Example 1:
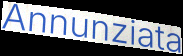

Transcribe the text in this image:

Annunziata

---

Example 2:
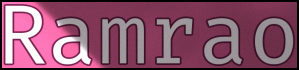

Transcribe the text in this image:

Ramrao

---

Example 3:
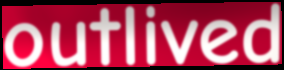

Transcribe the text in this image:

outlived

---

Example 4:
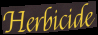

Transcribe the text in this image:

Herbicide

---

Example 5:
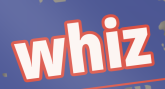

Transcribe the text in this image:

whiz